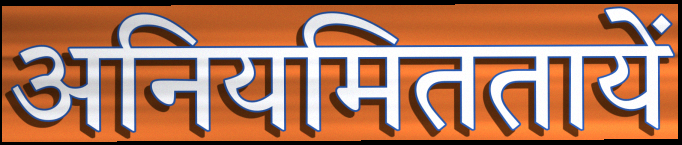
अनियमिततायें